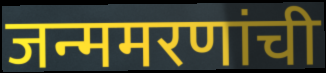
जन्ममरणांची